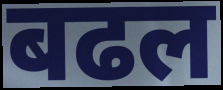
बढल